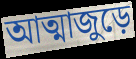
আত্মাজুড়ে